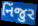
નિંજુર